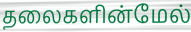
தலைகளின்மேல்